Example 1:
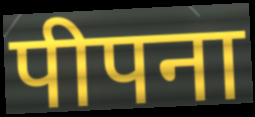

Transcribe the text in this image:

पीपना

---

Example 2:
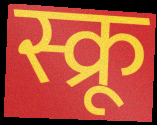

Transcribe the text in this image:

स्क्रू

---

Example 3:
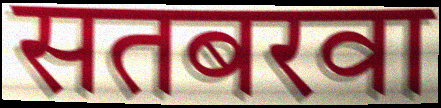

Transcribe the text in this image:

सतबरवा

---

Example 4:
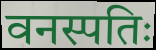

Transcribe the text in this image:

वनस्पतिः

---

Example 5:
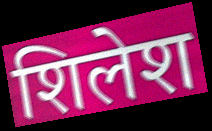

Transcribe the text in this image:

शिलेश